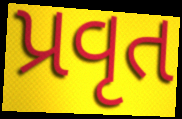
પ્રવૃત